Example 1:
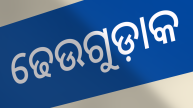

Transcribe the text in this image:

ଢେଉଗୁଡ଼ାକ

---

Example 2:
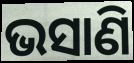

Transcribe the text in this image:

ଭସାଣି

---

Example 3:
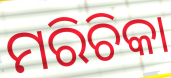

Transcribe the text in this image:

ମରିଚିକା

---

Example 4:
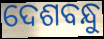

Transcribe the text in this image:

ଦେଶବନ୍ଧୁ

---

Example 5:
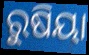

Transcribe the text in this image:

ରୁଷିୟା